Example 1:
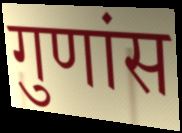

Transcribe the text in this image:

गुणांस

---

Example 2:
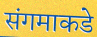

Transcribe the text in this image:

संगमाकडे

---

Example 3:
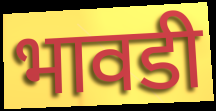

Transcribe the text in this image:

भावडी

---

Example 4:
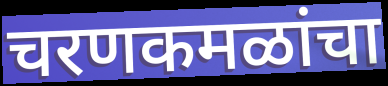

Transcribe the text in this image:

चरणकमळांचा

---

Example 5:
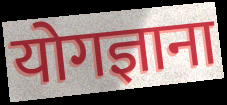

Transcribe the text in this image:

योगज्ञाना